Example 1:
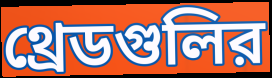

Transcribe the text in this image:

থ্রেডগুলির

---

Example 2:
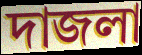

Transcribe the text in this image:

দাজলা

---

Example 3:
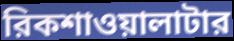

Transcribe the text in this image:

রিকশাওয়ালাটার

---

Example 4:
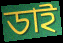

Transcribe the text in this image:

ডাই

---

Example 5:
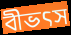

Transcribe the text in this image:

বীভৎস